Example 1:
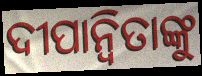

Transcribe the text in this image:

ଦୀପାନ୍ୱିତାଙ୍କୁ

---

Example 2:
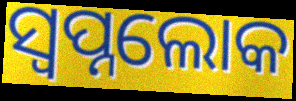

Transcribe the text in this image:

ସ୍ୱପ୍ନଲୋକ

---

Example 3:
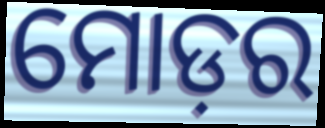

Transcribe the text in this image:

ମୋଡ଼ର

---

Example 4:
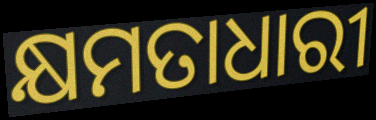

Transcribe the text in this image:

କ୍ଷମତାଧାରୀ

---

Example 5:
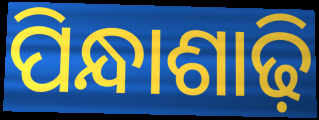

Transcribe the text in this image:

ପିନ୍ଧାଶାଢ଼ି